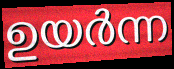
ഉയർന്ന